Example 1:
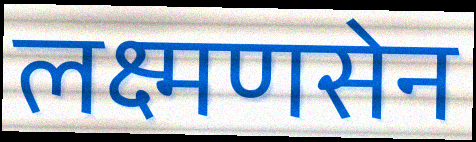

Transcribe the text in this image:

लक्ष्मणसेन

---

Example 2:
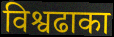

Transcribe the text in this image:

विश्वढाका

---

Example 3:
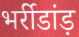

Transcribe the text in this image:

भर्रीडांड़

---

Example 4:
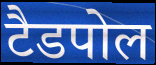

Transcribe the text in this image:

टैडपोल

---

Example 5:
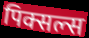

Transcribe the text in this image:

पिक्सल्स